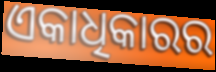
ଏକାଧିକାରର